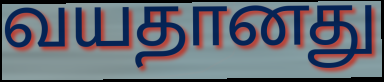
வயதானது